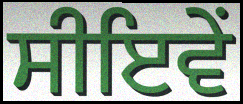
ਸੀਇਵੇਂ